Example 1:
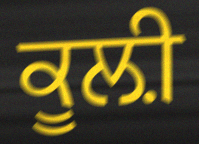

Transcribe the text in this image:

ਕੂਲ਼ੀ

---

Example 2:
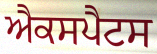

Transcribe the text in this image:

ਐਕਸਪੈਟਸ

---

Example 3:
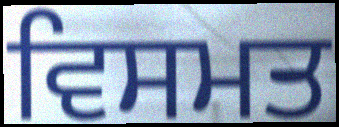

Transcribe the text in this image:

ਵਿਸਮਤ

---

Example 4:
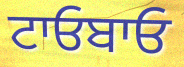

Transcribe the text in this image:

ਟਾਓਬਾਓ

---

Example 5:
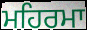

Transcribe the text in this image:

ਮਹਿਰਮਾ